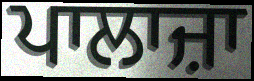
ਪਾਲਾਜ਼ਾ